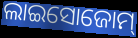
ଲାଇସୋଜୋମ୍